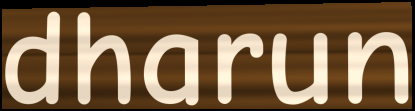
dharun